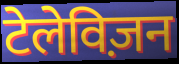
टेलेविज़न